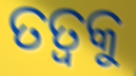
ତତ୍ୱକୁ